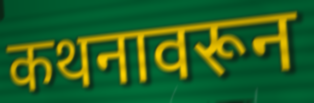
कथनावरून